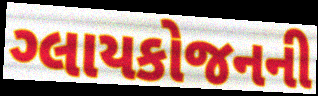
ગ્લાયકોજનની